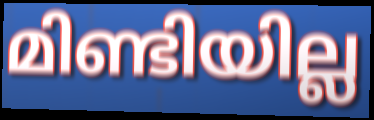
മിണ്ടിയില്ല